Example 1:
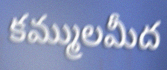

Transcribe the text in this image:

కమ్ములమీద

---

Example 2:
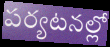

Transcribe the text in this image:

పర్యటనల్లో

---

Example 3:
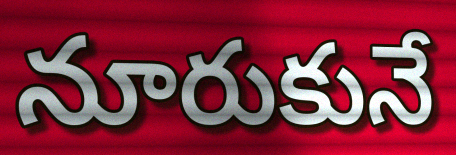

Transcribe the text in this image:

నూరుకునే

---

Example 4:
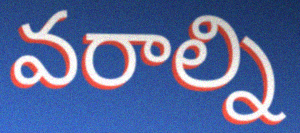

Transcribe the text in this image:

వరాల్ని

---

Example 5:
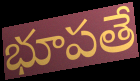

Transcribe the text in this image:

భూపతే